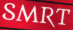
SMRT